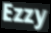
Ezzy